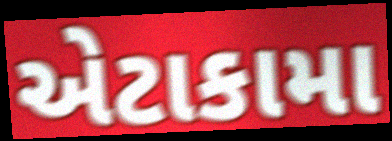
એટાકામા